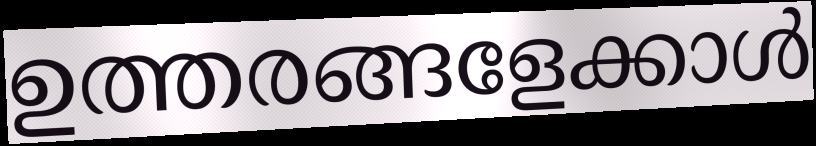
ഉത്തരങ്ങളേക്കാൾ